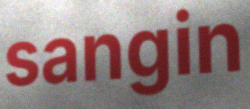
sangin